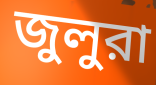
জুলুরা